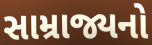
સામ્રાજ્યનો